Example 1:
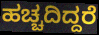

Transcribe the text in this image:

ಹಚ್ಚದಿದ್ದರೆ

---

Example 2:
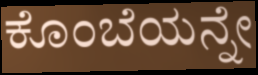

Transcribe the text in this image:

ಕೊಂಬೆಯನ್ನೇ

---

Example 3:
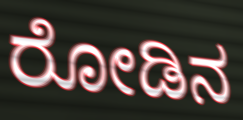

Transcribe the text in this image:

ರೋಡಿನ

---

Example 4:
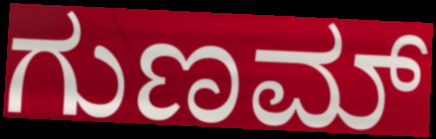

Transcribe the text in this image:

ಗುಣಮ್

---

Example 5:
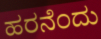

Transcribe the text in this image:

ಹರನೆಂದು